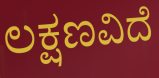
ಲಕ್ಷಣವಿದೆ